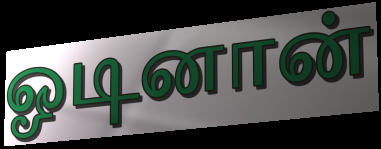
ஓடினான்